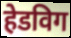
हेडविग